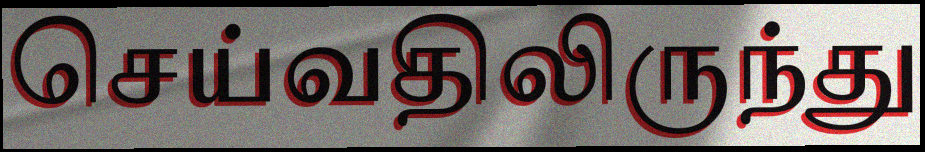
செய்வதிலிருந்து